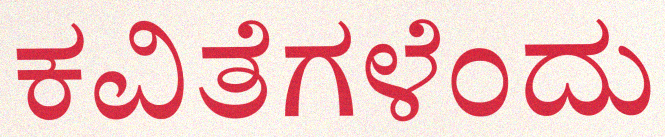
ಕವಿತೆಗಳೆಂದು